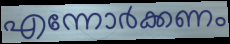
എന്നോർക്കണം